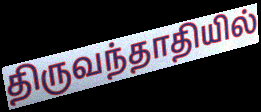
திருவந்தாதியில்